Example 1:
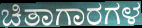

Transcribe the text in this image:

ಚಿತಾಗಾರಗಳ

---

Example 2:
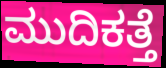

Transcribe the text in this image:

ಮುದಿಕತ್ತೆ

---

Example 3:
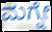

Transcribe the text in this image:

ಮಗ್ನೇ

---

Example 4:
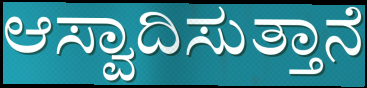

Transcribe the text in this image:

ಆಸ್ವಾದಿಸುತ್ತಾನೆ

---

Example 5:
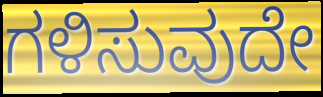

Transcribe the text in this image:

ಗಳಿಸುವುದೇ